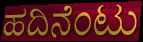
ಹದಿನೆಂಟು